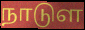
நாடுள